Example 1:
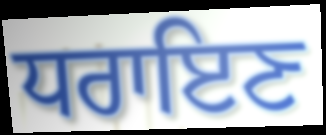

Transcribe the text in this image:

ਧਰਾਇਣ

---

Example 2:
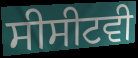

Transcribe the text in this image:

ਸੀਸੀਟਵੀ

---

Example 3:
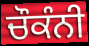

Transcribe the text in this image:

ਚੌਕੰਨੀ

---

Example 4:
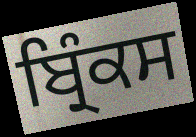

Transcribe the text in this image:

ਬ੍ਰਿੰਕਸ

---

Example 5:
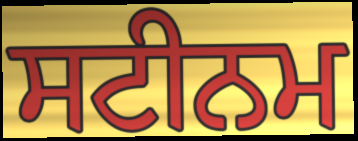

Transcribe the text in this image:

ਸਟੀਨਮ